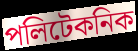
পলিটেকনিক